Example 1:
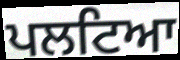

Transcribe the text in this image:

ਪਲਟਿਆ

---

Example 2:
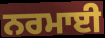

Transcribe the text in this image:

ਨਰਮਾਈ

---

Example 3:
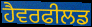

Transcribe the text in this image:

ਹੈਵਰਫੀਲਡ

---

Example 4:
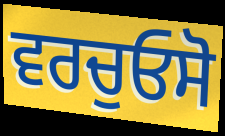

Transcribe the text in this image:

ਵਰਚੁਓਸੋ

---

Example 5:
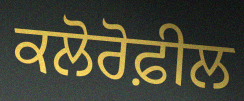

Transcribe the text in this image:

ਕਲੋਰੋਫ਼ੀਲ